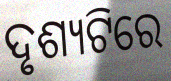
ଦୃଶ୍ୟଟିରେ